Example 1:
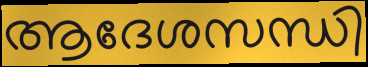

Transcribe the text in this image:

ആദേശസന്ധി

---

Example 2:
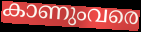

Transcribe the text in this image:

കാണുംവരെ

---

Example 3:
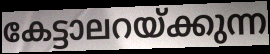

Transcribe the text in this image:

കേട്ടാലറയ്ക്കുന്ന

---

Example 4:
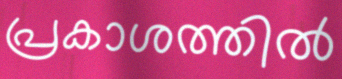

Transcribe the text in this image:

പ്രകാശത്തിൽ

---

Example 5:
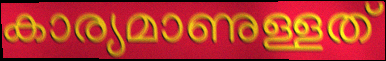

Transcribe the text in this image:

കാര്യമാണുള്ളത്